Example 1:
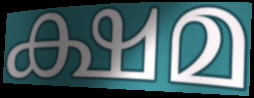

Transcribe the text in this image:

ക്ഷമ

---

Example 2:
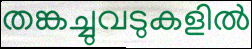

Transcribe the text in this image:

തങ്കച്ചുവടുകളിൽ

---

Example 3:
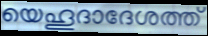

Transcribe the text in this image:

യെഹൂദാദേശത്ത്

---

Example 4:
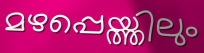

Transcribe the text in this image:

മഴപ്പെയ്ത്തിലും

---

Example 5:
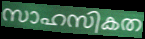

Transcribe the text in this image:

സാഹസികത